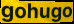
gohugo